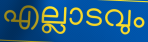
എല്ലാടവും